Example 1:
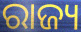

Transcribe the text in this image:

ରାଜ୍ୟ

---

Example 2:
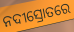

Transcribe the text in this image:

ନଦୀସ୍ରୋତରେ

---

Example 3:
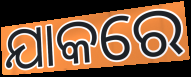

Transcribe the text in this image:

ଯାକରେ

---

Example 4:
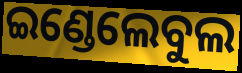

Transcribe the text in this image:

ଇଣ୍ଡେଲେବୁଲ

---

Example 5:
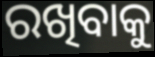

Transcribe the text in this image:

ରଖିବାକୁ